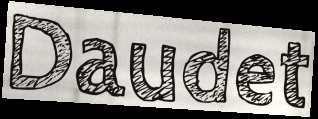
Daudet